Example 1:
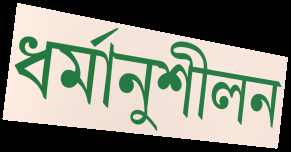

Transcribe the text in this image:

ধৰ্মানুশীলন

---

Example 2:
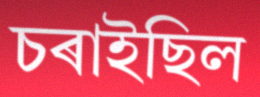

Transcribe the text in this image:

চৰাইছিল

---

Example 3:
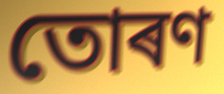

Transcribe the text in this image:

তোৰণ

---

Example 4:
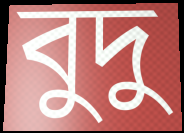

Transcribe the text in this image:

বুদু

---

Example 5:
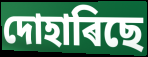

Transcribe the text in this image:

দোহাৰিছে